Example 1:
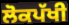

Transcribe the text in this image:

ਲੋਕਪੱਖੀ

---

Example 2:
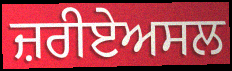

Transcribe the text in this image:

ਜ਼ਰੀਏਅਸਲ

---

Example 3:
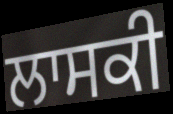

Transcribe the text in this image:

ਲਾਸਕੀ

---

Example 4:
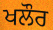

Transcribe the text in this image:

ਖਲੌਰ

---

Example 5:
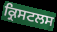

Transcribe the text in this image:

ਕ੍ਰਿਸਟਲਸ